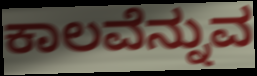
ಕಾಲವೆನ್ನುವ